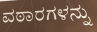
ವಠಾರಗಳನ್ನು